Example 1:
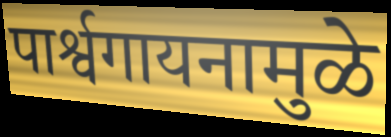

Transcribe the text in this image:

पार्श्वगायनामुळे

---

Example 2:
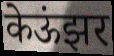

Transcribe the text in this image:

केऊंझर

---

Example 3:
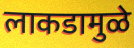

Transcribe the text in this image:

लाकडामुळे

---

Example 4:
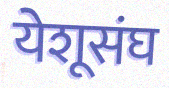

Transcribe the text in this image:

येशूसंघ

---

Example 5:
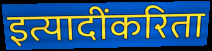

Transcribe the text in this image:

इत्यादींकरिता